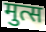
मुत्स